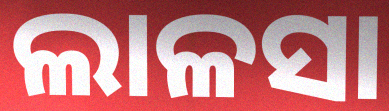
ଲାଳସା